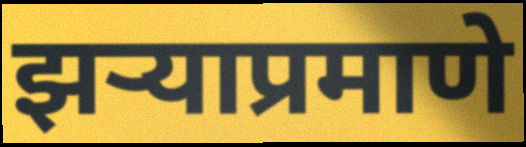
झऱ्याप्रमाणे